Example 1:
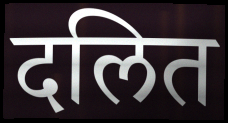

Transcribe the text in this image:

दलित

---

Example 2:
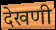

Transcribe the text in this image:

देखणी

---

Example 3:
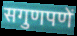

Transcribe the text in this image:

सगुणपणें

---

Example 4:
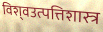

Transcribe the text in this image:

विश्वउत्पत्तिशास्त्र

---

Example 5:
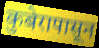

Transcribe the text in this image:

कुबेरापासून